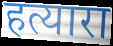
हत्यारा